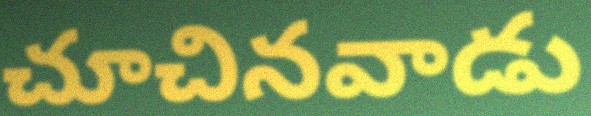
చూచినవాడు